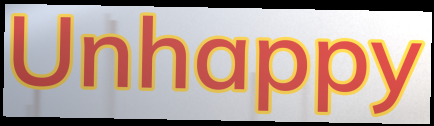
Unhappy